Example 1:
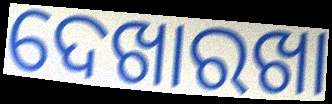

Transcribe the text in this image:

ଦେଖାରଖା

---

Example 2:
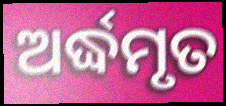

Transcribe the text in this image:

ଅର୍ଦ୍ଧମୃତ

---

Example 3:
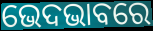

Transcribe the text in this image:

ଭେଦଭାବରେ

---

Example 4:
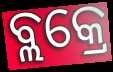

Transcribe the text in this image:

ବ୍ଲକ୍ରେ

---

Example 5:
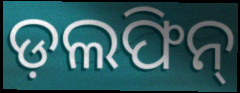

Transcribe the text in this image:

ଡ଼ଲଫିନ୍